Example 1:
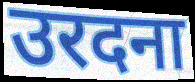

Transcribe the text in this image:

उरदना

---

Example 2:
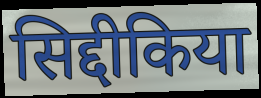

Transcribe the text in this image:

सिद्दीकिया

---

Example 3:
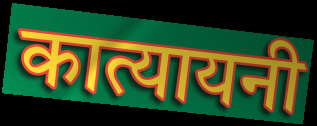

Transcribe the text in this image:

कात्यायनी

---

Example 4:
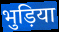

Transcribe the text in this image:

भुड़िया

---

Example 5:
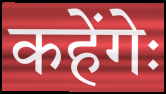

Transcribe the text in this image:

कहेंगेः